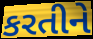
કરતીને